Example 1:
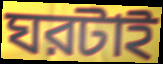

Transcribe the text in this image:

ঘরটাই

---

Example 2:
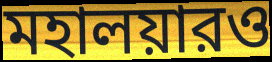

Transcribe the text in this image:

মহালয়ারও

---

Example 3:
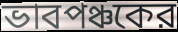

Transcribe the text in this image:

ভাবপঞ্চকের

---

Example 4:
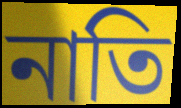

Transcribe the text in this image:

নাতি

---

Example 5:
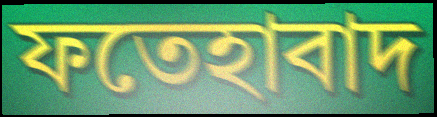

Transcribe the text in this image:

ফতেহাবাদ